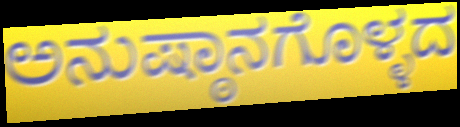
ಅನುಷ್ಠಾನಗೊಳ್ಳದ